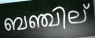
ബഞ്ചില്